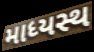
માધ્યસ્થ